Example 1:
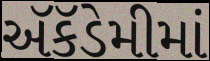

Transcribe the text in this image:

ઍકૅડેમીમાં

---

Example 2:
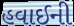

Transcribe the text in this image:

હવાઈની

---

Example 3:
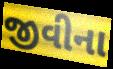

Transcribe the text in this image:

જીવીના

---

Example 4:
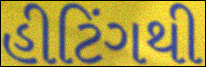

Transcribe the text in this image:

હીટિંગથી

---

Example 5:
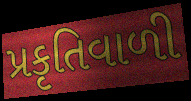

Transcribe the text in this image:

પ્રકૃતિવાળી